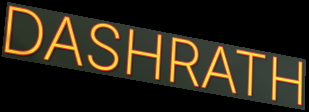
DASHRATH